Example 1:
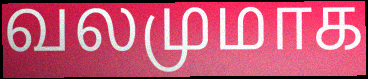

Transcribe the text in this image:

வலமுமாக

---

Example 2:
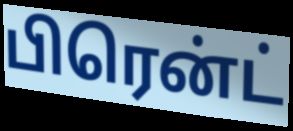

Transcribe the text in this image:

பிரென்ட்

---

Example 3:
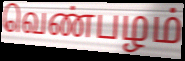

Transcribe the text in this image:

வெண்பழம்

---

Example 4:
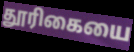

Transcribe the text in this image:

தூரிகையை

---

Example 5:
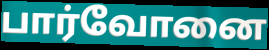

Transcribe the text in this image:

பார்வோனை